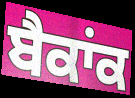
ਬੈਕਾਂਕ